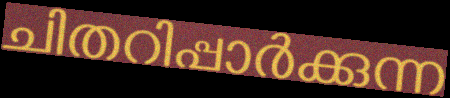
ചിതറിപ്പാർക്കുന്ന